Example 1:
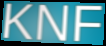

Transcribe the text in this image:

KNF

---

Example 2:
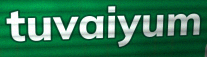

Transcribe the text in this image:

tuvaiyum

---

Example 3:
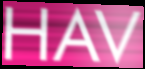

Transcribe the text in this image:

HAV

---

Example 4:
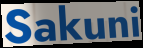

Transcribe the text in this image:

Sakuni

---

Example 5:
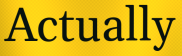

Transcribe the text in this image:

Actually